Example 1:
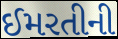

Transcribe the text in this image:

ઈમરતીની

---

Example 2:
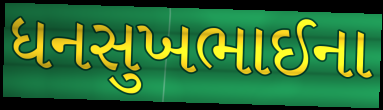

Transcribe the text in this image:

ધનસુખભાઈના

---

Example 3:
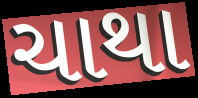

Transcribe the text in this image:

ચાથા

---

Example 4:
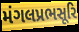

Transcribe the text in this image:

મંગલપ્રભસૂરિ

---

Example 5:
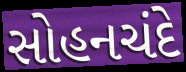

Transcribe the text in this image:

સોહનચંદે